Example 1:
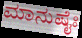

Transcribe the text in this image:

ಮಾನುಷೈಃ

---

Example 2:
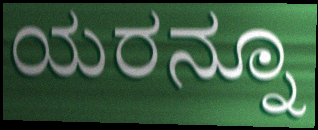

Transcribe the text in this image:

ಯರನ್ನೂ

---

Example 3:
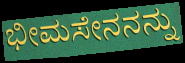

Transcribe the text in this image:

ಭೀಮಸೇನನನ್ನು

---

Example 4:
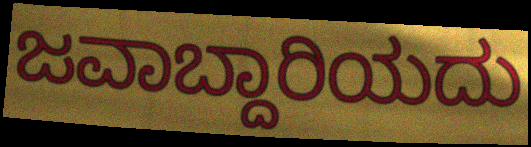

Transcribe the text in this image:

ಜವಾಬ್ದಾರಿಯದು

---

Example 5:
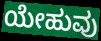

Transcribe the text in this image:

ಯೇಹುವು